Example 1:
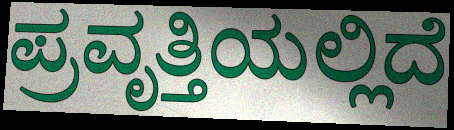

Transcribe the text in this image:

ಪ್ರವೃತ್ತಿಯಲ್ಲಿದೆ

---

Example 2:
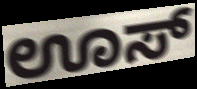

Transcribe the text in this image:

ಊಸ್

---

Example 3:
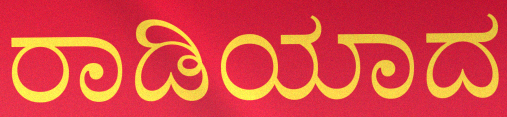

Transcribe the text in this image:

ರಾಡಿಯಾದ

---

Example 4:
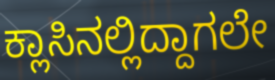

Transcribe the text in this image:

ಕ್ಲಾಸಿನಲ್ಲಿದ್ದಾಗಲೇ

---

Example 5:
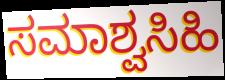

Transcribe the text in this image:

ಸಮಾಶ್ವಸಿಹಿ